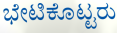
ಭೇಟಿಕೊಟ್ಟರು